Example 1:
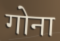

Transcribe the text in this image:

गोना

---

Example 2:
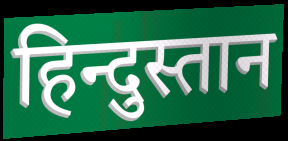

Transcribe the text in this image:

हिन्दुस्तान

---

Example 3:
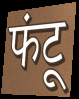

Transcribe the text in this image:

फंटू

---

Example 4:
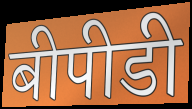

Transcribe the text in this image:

बीपीडी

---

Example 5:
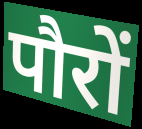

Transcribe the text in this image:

पौरों